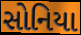
સોનિયા